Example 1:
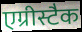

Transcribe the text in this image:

एग्रीस्टैक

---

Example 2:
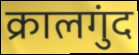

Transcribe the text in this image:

क्रालगुंद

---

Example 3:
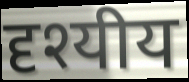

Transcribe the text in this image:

दृश्यीय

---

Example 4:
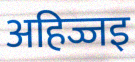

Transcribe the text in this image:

अहिज्जइ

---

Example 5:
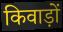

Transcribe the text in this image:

किवाड़ों